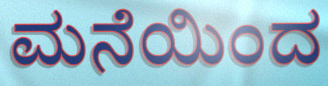
ಮನೆಯಿಂದ